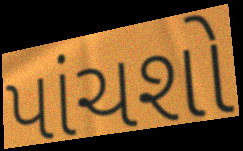
પાંચશો